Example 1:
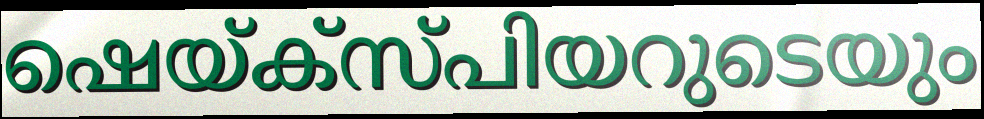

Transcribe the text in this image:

ഷെയ്ക്സ്പിയറുടെയും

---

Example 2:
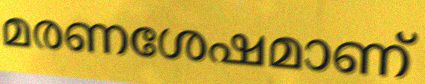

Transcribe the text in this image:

മരണശേഷമാണ്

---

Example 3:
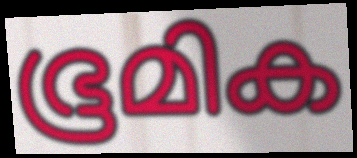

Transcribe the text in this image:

ഭൂമിക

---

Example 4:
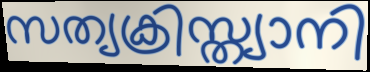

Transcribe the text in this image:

സത്യക്രിസ്ത്യാനി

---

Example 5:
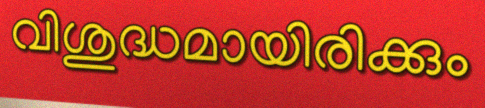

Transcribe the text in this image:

വിശുദ്ധമായിരിക്കും